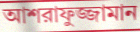
আশরাফুজ্জামান